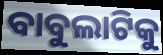
ବାବୁଲାଟିକୁ